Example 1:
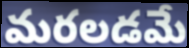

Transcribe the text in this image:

మరలడమే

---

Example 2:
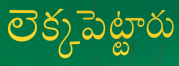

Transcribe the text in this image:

లెక్కపెట్టారు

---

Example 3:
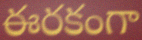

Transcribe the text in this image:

ఈరకంగా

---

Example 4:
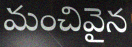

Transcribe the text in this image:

మంచివైన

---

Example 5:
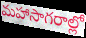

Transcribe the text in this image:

మహాసాగరాల్లో